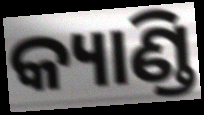
କ୍ୟାଣ୍ଡି